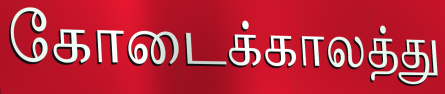
கோடைக்காலத்து